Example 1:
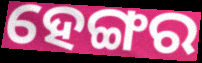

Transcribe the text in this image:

ହେଙ୍ଗର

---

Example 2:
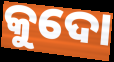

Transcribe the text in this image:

କୁଦୋ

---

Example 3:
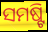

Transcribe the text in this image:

ସମଷ୍ଟି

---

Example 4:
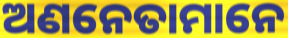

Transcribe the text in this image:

ଅଣନେତାମାନେ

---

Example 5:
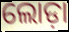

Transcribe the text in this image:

ଲୋଡ଼ା